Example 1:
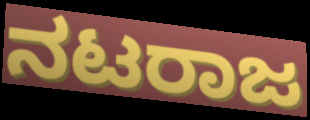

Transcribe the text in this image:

ನಟರಾಜ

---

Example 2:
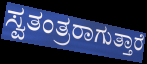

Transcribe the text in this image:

ಸ್ವತಂತ್ರರಾಗುತ್ತಾರೆ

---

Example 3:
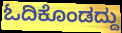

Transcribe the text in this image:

ಓದಿಕೊಂಡದ್ದು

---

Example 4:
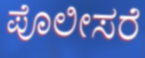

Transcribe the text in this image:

ಪೊಲೀಸರೆ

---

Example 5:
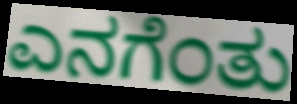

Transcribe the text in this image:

ಎನಗೆಂತು